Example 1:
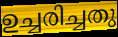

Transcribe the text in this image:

ഉച്ചരിച്ചതു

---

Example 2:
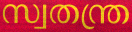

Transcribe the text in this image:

സ്വതന്ത്ര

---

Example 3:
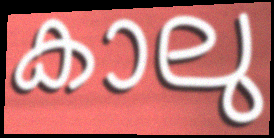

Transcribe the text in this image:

കാലു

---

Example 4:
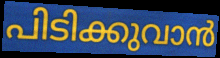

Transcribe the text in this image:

പിടിക്കുവാൻ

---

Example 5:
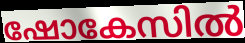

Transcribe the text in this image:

ഷോകേസിൽ